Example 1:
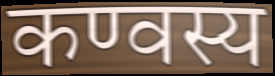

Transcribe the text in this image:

कण्वस्य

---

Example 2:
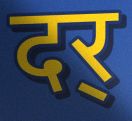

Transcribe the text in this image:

दर्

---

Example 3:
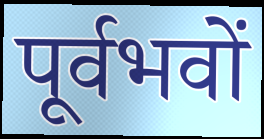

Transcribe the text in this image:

पूर्वभवों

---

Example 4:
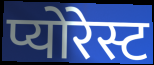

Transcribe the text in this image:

प्योरेस्ट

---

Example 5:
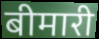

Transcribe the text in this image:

बीमारी